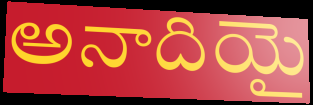
అనాదియై